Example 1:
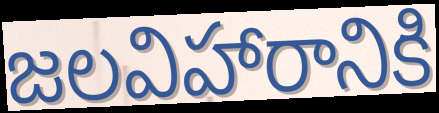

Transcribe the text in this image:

జలవిహారానికి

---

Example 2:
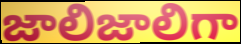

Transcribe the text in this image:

జాలిజాలిగా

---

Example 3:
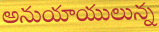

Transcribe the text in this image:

అనుయాయులున్న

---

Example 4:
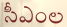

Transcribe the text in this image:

సీఎంల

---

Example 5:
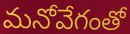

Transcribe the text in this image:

మనోవేగంతో